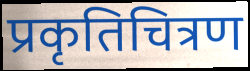
प्रकृतिचित्रण